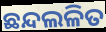
ଛନ୍ଦଲଳିତ